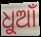
ଧୁଆଁ